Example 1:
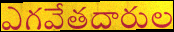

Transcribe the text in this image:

ఎగవేతదారుల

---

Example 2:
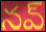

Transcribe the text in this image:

నవ్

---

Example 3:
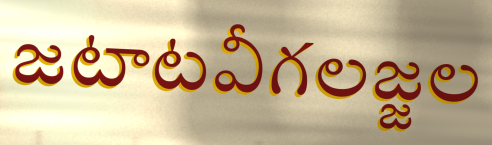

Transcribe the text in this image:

జటాటవీగలజ్జల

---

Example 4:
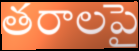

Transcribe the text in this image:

తరాలపై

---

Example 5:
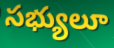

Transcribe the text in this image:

సభ్యులూ